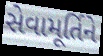
સેવામૂર્તિને